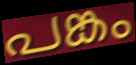
പങ്കം